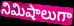
నిమిషాలుగా